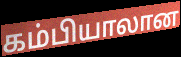
கம்பியாலான